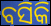
ବସିକି